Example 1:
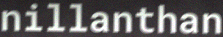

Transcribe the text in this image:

nillanthan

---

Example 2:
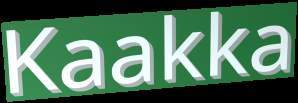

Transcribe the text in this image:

Kaakka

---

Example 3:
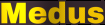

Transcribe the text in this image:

Medus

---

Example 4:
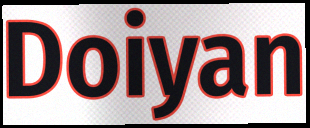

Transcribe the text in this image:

Doiyan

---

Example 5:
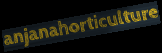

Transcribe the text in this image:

anjanahorticulture